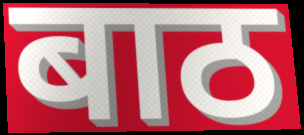
बाठ